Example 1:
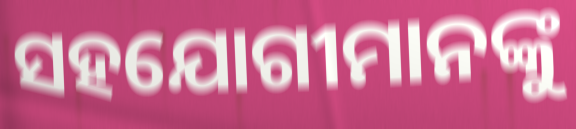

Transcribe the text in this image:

ସହଯୋଗୀମାନଙ୍କୁ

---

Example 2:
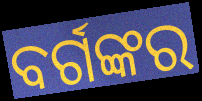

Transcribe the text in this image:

ବର୍ଗଙ୍କର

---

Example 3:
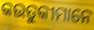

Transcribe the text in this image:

କଉତୁକୀମାନେ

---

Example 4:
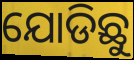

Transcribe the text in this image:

ଯୋଡିଛୁ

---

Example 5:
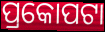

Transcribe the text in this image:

ପ୍ରକୋପଟା